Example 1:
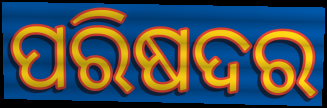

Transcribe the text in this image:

ପରିଷଦର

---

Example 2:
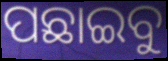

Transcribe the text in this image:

ପଛାଇବୁ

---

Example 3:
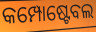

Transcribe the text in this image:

କମ୍ପୋଷ୍ଟେବଲ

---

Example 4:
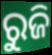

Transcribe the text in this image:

ରୁଜି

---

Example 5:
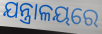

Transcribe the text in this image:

ଯନ୍ତ୍ରାଳୟରେ